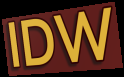
IDW